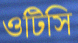
ওটিসি